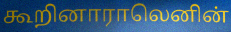
கூறினாராலெனின்